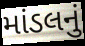
માંડલનું